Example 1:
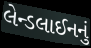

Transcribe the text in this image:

લેન્ડલાઈનનું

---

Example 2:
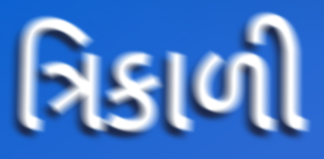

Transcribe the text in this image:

ત્રિકાળી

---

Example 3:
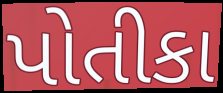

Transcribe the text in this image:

પોતીકા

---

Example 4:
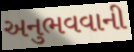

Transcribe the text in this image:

અનુભવવાની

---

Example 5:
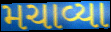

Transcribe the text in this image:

મચાવ્યા